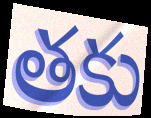
తకు